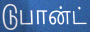
டுபான்ட்